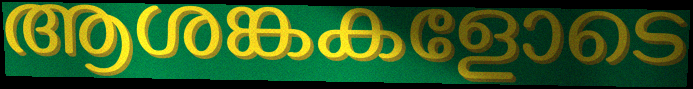
ആശങ്കകളോടെ